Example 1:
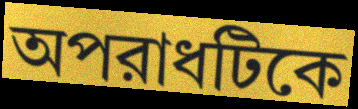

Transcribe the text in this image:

অপরাধটিকে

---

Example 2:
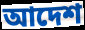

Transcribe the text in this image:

আদেশ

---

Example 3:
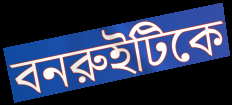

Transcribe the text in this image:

বনরুইটিকে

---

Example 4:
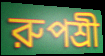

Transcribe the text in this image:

রুপশ্রী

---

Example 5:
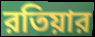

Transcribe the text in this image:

রতিয়ার